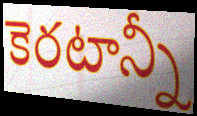
కెరటాన్నీ